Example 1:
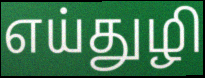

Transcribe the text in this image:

எய்துழி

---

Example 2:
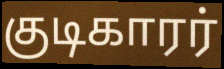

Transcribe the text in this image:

குடிகாரர்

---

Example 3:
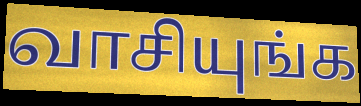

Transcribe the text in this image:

வாசியுங்க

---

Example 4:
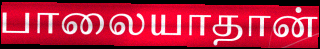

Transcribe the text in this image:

பாலையாதான்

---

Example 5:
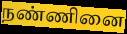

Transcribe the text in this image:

நண்ணினை